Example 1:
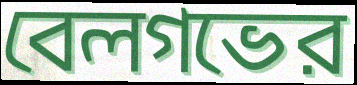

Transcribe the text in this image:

বেলগভের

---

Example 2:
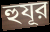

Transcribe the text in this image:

হুযূর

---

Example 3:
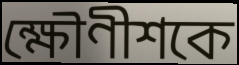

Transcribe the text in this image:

ক্ষৌণীশকে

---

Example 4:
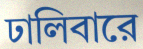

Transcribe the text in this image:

ঢালিবারে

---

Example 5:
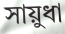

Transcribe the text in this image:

সায়ুধা